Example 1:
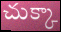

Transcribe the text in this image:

చుక్కా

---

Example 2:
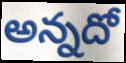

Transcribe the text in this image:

అన్నదో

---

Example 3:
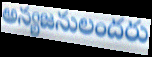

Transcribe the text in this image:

అన్యజనులందరు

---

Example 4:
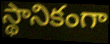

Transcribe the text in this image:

స్థానికంగా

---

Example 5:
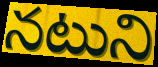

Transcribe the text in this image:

నటుని